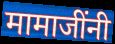
मामाजींनी